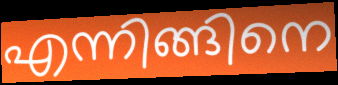
എന്നിങ്ങിനെ